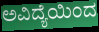
ಅವಿದ್ಯೆಯಿಂದ